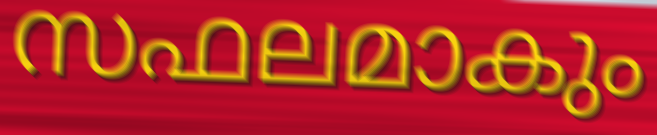
സഫലമാകും